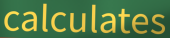
calculates